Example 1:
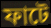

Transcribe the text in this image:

ফাটে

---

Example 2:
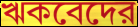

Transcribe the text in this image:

ঋকবেদের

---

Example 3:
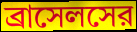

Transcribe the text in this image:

ব্রাসেলসের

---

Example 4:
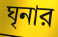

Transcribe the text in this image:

ঘৃনার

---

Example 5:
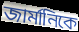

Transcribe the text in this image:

জার্মানিকে